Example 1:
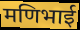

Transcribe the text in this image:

मणिभाई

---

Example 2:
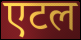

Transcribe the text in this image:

एटल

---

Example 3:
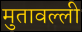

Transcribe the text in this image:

मुतावल्ली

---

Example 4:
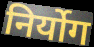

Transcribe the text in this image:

निर्योग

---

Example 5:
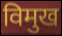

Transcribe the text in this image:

विमुख